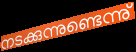
നടക്കുന്നുണ്ടെന്നു്